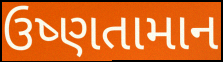
ઉષ્ણતામાન